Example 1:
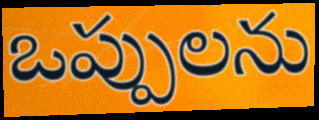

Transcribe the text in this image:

ఒప్పులను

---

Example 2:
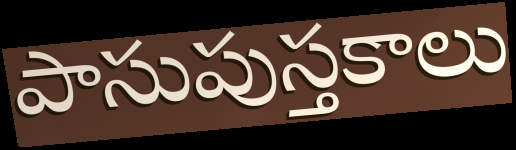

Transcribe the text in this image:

పాసుపుస్తకాలు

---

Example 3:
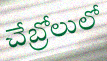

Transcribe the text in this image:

చేబ్రోలులో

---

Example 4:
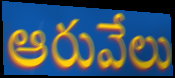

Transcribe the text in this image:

ఆరువేలు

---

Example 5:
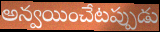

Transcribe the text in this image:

అన్వయించేటప్పుడు